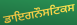
ਡਾਇਗਨੌਸਟਿਕਸ